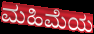
ಮಹಿಮೆಯ